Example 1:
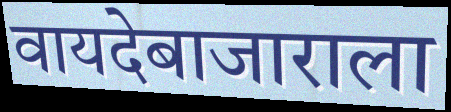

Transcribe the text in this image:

वायदेबाजाराला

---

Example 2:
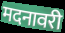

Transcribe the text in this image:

मदनावरी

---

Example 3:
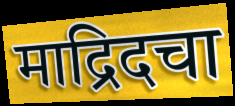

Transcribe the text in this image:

माद्रिदचा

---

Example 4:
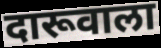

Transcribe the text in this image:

दारूवाला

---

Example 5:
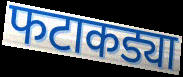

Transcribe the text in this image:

फटाकड्या